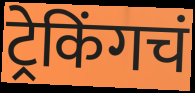
ट्रेकिंगचं